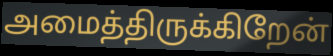
அமைத்திருக்கிறேன்